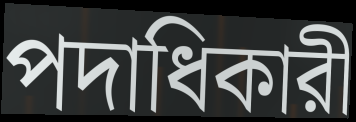
পদাধিকারী